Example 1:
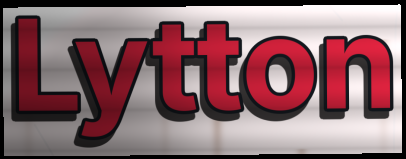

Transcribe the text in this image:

Lytton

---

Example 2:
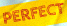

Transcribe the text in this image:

PERFECT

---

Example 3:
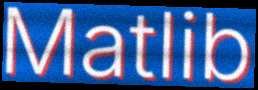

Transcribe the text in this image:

Matlib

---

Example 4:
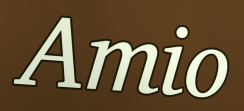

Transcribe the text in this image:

Amio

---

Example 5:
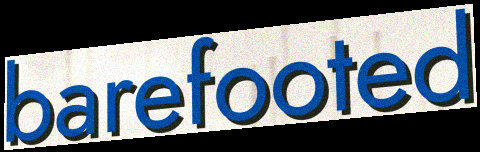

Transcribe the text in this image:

barefooted